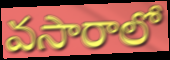
వసారాలో